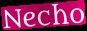
Necho